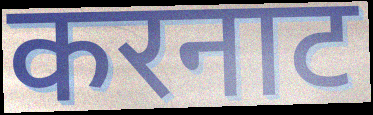
करनाट